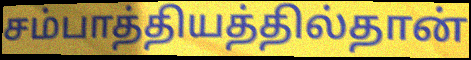
சம்பாத்தியத்தில்தான்